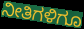
ನೀತಿಗಳಿಗೂ